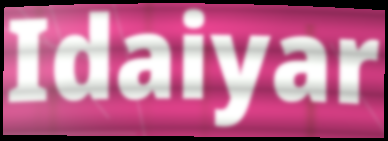
Idaiyar